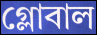
গ্লোবাল